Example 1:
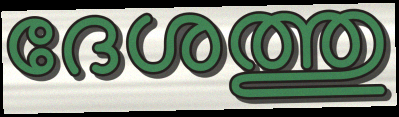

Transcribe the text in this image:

ദേശത്തു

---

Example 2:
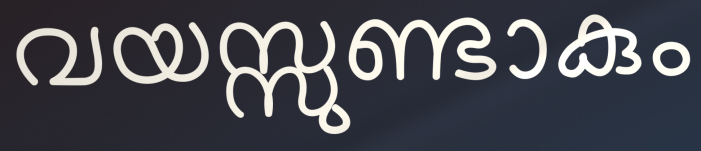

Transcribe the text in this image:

വയസ്സുണ്ടാകും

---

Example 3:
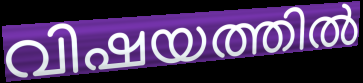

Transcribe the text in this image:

വിഷയത്തിൽ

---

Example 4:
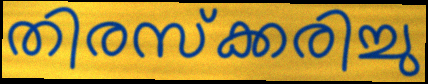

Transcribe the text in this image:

തിരസ്ക്കരിച്ചു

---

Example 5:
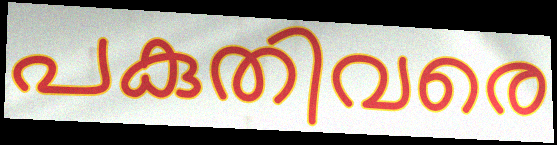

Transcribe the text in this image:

പകുതിവരെ